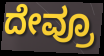
ದೇವ್ರೂ